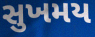
સુખમય